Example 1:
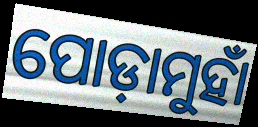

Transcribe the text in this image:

ପୋଡ଼ାମୁହାଁ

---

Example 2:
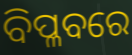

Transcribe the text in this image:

ବିପ୍ଳବରେ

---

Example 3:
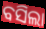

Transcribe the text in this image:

ବସିଲା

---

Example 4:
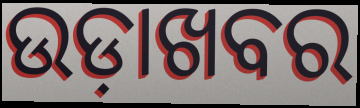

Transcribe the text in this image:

ଉଡ଼ାଖବର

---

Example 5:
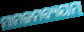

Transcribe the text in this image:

ମାମଜମବ୍ୟୟମ୍